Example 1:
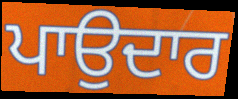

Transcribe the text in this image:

ਪਾਉਦਾਰ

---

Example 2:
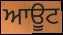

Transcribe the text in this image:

ਆਉੂਟ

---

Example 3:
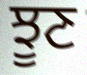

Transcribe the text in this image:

ਝੂਣ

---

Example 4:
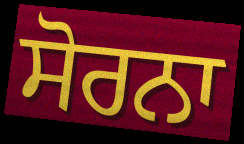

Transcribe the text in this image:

ਸੋਰਨਾ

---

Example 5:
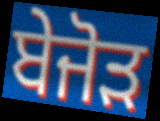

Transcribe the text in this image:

ਬੇਜੋੜ